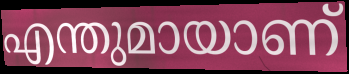
എന്തുമായാണ്